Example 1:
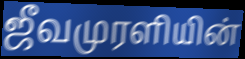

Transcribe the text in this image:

ஜீவமுரளியின்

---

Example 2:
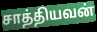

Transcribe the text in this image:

சாத்தியவன்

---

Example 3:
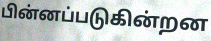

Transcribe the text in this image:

பின்னப்படுகின்றன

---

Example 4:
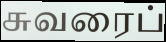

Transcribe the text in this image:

சுவரைப்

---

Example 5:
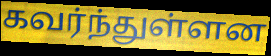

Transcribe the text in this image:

கவர்ந்துள்ளன